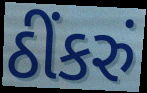
ઠીંકરું